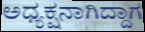
ಅಧ್ಯಕ್ಷನಾಗಿದ್ದಾಗ